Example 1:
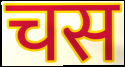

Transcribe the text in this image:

चस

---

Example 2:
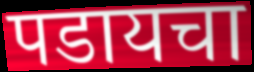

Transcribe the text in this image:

पडायचा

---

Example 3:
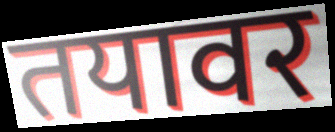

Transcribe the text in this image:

तयावर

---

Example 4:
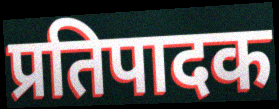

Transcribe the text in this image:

प्रतिपादक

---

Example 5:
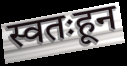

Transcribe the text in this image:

स्वतःहून